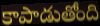
కాపాడుతోంది